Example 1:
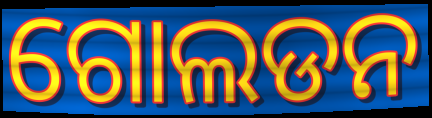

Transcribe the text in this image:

ଗୋଲଡନ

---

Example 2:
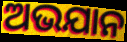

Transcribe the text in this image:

ଅଭଯାନ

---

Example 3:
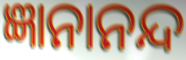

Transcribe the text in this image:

ଜ୍ଞାନାନନ୍ଦ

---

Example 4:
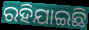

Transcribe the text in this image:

ରହିଯାଇଛି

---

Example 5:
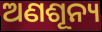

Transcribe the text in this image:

ଅଣଶୂନ୍ୟ